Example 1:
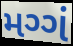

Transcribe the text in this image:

મગ્ગં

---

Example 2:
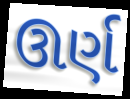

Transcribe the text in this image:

ઊર્ણ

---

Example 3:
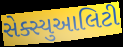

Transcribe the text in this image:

સેક્સ્યુઆલિટી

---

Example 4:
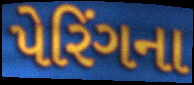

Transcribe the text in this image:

પેરિંગના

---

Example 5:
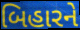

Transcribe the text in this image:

બિહારને